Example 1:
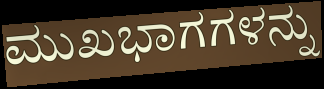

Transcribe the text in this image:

ಮುಖಭಾಗಗಳನ್ನು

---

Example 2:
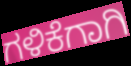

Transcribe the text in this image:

ಗಳಿಕೆಗಾಗಿ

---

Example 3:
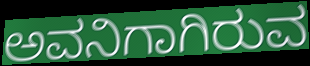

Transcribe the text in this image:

ಅವನಿಗಾಗಿರುವ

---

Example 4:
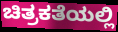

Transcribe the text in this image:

ಚಿತ್ರಕತೆಯಲ್ಲಿ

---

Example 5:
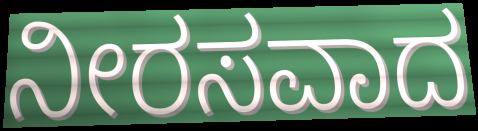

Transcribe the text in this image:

ನೀರಸವಾದ